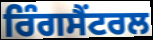
ਰਿੰਗਸੈਂਟਰਲ